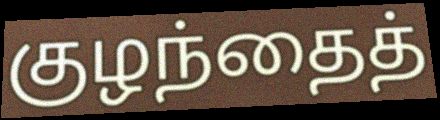
குழந்தைத்